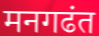
मनगढंत